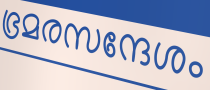
ഭ്രമരസന്ദേശം